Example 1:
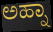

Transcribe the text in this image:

ಅಹ್ನಾ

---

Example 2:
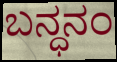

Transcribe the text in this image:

ಬನ್ಧನಂ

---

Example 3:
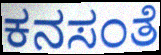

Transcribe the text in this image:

ಕನಸಂತೆ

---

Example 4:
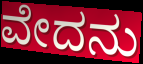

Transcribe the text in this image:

ವೇದನು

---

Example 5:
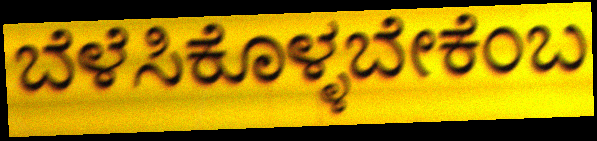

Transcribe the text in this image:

ಬೆಳೆಸಿಕೊಳ್ಳಬೇಕೆಂಬ